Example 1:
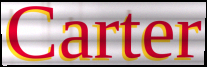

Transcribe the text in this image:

Carter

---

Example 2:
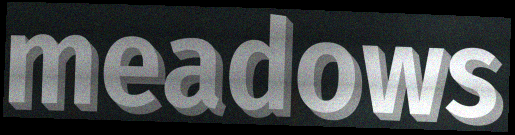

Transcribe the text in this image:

meadows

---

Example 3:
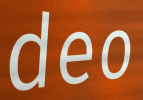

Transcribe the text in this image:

deo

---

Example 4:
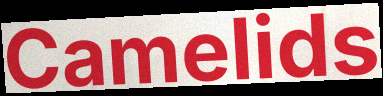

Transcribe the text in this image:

Camelids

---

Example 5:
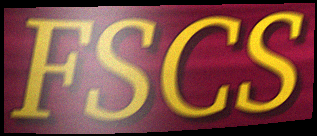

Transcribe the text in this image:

FSCS